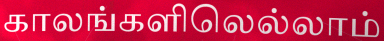
காலங்களிலெல்லாம்